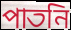
পাতনি